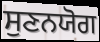
ਸੁਣਨਯੋਗ